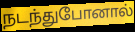
நடந்துபோனால்